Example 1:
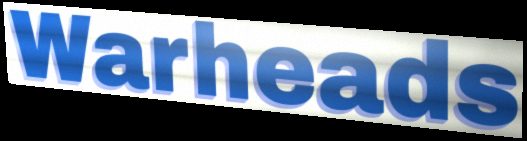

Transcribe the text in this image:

Warheads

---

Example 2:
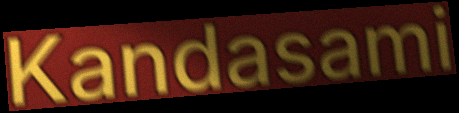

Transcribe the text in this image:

Kandasami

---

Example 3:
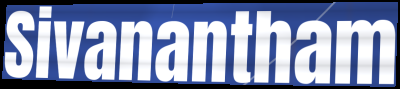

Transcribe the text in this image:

Sivanantham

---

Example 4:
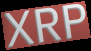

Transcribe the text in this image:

XRP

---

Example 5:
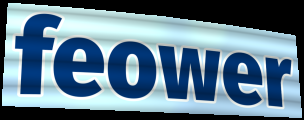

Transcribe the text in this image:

feower